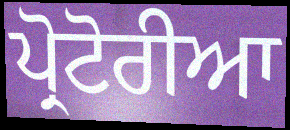
ਪ੍ਰੋਟੋਰੀਆ